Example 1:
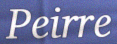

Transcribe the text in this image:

Peirre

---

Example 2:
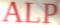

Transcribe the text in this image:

ALP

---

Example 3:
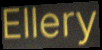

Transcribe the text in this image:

Ellery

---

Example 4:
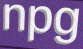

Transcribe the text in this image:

npg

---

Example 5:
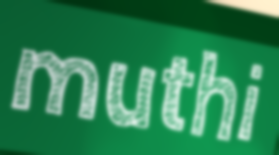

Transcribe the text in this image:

muthi